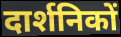
दार्शनिकों